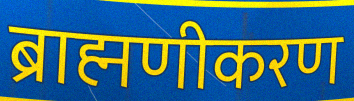
ब्राह्मणीकरण